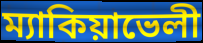
ম্যাকিয়াভেলী